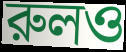
রুলও